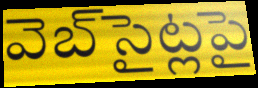
వెబ్‌సైట్లపై